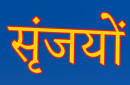
सृंजयों